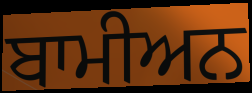
ਬਾਮੀਅਨ